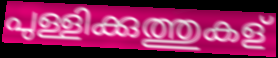
പുള്ളിക്കുത്തുകള്